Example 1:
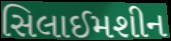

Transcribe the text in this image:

સિલાઈમશીન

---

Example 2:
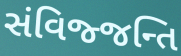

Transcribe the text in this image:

સંવિજ્જન્તિ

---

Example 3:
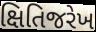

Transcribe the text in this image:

ક્ષિતિજરેખ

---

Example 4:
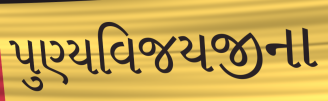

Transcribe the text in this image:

પુણ્યવિજયજીના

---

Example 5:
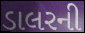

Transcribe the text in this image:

ડાલરની